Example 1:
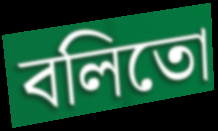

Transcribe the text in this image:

বলিতো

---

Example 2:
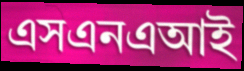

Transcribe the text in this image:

এসএনএআই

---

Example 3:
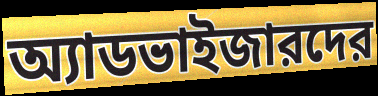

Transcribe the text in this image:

অ্যাডভাইজারদের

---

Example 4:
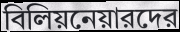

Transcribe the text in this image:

বিলিয়নেয়ারদের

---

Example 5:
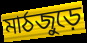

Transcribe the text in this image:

মাঠজুড়ে